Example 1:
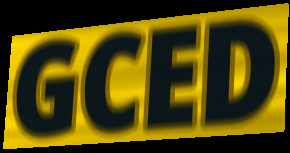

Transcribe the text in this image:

GCED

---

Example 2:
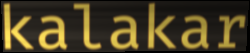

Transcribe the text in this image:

kalakar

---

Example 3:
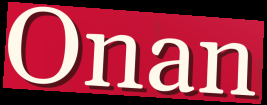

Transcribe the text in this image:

Onan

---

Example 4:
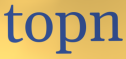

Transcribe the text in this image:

topn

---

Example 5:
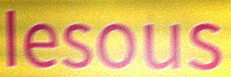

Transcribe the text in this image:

Iesous